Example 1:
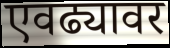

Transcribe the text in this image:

एवढ्यावर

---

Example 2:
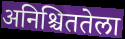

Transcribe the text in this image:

अनिश्चिततेला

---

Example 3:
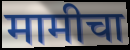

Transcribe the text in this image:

मामीचा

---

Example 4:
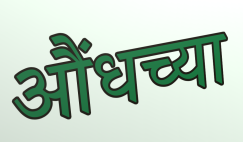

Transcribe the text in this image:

औंधच्या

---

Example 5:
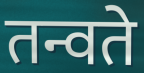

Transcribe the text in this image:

तन्वते